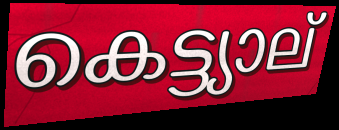
കെട്ട്യാല്